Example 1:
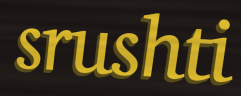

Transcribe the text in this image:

srushti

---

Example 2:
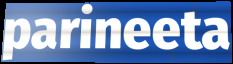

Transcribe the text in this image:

parineeta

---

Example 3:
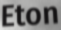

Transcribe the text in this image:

Eton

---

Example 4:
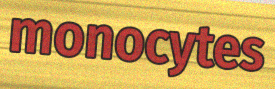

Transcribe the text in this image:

monocytes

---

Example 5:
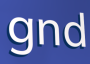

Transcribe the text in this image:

gnd